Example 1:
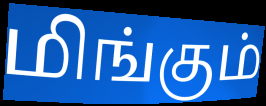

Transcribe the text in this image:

மிங்கும்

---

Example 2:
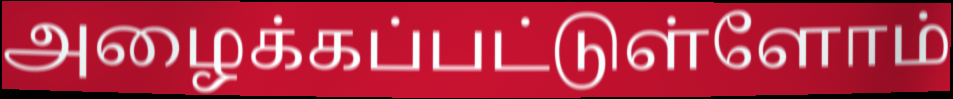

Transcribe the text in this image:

அழைக்கப்பட்டுள்ளோம்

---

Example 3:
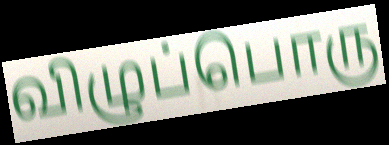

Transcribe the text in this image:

விழுப்பொரு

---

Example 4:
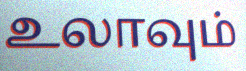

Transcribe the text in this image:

உலாவும்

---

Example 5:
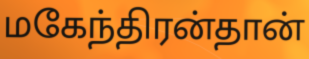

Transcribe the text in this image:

மகேந்திரன்தான்